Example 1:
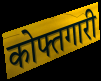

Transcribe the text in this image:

कोफ्तगारी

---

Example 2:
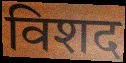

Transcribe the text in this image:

विशद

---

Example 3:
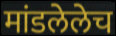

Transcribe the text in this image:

मांडलेलेच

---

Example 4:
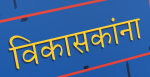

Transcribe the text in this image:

विकासकांना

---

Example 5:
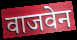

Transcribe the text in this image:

वाजवेन